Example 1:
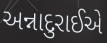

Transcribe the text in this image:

અન્નાદુરાઈએ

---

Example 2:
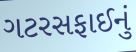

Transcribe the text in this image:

ગટરસફાઈનું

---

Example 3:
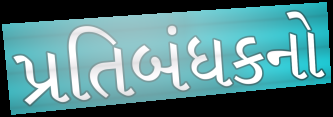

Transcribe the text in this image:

પ્રતિબંધકનો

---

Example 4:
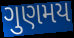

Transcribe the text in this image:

ગુણમય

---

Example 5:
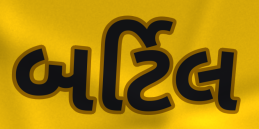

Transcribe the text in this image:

બર્ટિલ